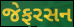
જેફરસન